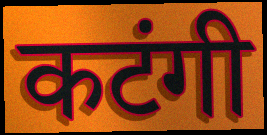
कटंगी